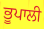
ਭੂਪਾਲੀ